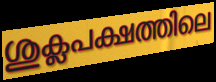
ശുക്ലപക്ഷത്തിലെ